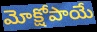
మోక్షోపాయే